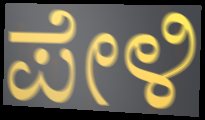
ಪೇಳಿ